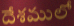
దేశములో